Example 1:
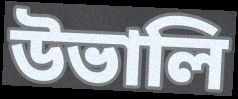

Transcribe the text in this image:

উভালি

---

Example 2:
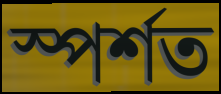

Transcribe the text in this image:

স্পৰ্শত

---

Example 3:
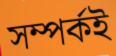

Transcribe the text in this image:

সম্পৰ্কই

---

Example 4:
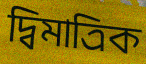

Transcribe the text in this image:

দ্বিমাত্ৰিক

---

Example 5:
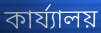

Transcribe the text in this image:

কাৰ্য্যালয়